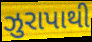
ઝુરાપાથી